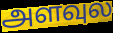
அளவுல